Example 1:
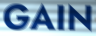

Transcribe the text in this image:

GAIN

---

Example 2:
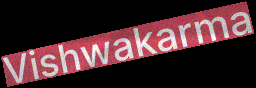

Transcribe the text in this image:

Vishwakarma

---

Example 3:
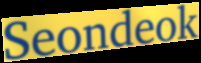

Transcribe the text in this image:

Seondeok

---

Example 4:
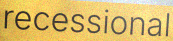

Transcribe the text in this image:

recessional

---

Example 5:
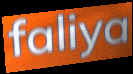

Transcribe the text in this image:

faliya